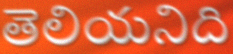
తెలియనిది